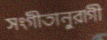
সংগীতানুরাগী